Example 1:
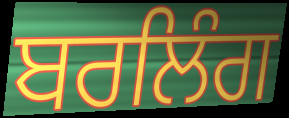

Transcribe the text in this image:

ਬਰਲਿੰਗ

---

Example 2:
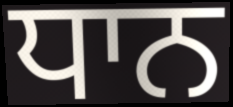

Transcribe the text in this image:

ਧਾਨ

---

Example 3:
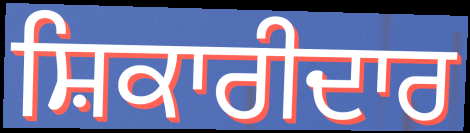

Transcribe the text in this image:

ਸ਼ਿਕਾਰੀਦਾਰ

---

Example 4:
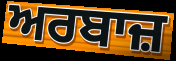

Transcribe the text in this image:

ਅਰਬਾਜ਼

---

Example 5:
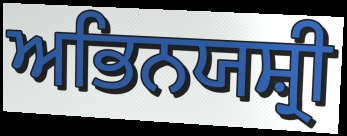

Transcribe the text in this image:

ਅਭਿਨਯਸ਼੍ਰੀ